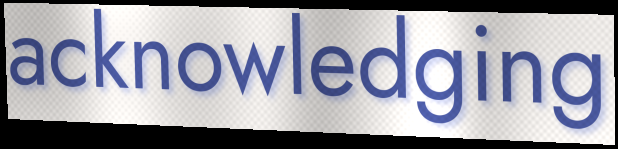
acknowledging